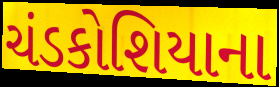
ચંડકોશિયાના